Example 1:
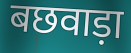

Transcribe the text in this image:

बछवाड़ा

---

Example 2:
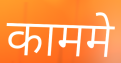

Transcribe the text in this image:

काममे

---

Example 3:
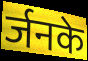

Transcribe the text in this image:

र्जनके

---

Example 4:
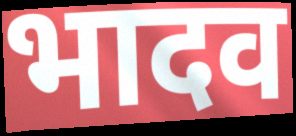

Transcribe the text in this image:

भादव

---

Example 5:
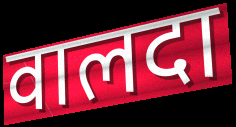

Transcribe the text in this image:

वालदा